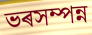
ভৰসম্পন্ন